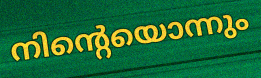
നിന്റെയൊന്നും